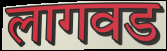
लागवड